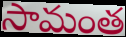
సామంత